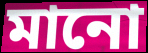
মানো